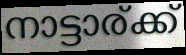
നാട്ടാര്ക്ക്